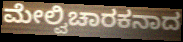
ಮೇಲ್ವಿಚಾರಕನಾದ